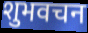
शुभवचन